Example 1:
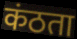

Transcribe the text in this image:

कंठता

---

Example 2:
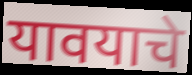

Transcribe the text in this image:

यावयाचे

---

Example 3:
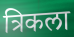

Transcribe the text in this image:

त्रिकला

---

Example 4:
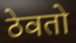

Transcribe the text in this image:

ठेवतो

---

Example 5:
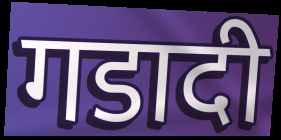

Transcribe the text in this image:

गडादी